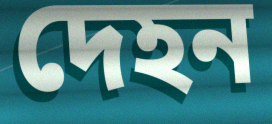
দেহন